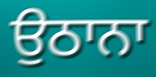
ਉਠਾਨਾ